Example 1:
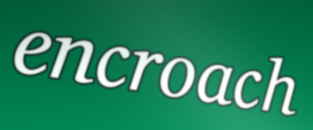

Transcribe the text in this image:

encroach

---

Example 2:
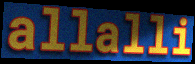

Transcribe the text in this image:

allalli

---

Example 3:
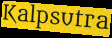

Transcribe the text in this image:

Kalpsutra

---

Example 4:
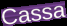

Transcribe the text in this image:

Cassa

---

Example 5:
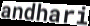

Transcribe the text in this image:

andhari